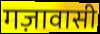
गज़ावासी